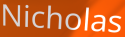
Nicholas